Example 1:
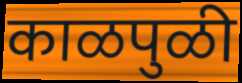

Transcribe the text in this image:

काळपुळी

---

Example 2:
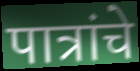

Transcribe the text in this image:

पात्रांचे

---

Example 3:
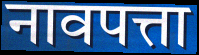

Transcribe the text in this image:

नावपत्ता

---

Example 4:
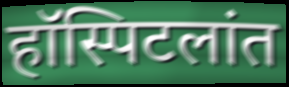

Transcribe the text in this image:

हॉस्पिटलांत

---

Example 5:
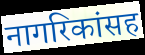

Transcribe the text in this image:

नागरिकांसह